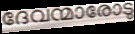
ദേവന്മാരോടു